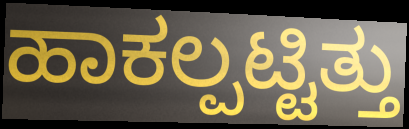
ಹಾಕಲ್ಪಟ್ಟಿತ್ತು